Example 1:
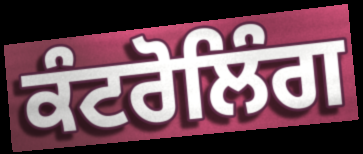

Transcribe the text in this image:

ਕੰਟਰੋਲਿੰਗ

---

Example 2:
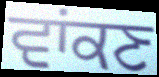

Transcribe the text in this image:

ਵਾਂਕਣ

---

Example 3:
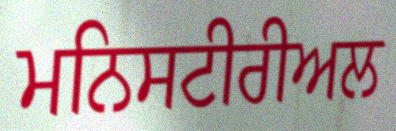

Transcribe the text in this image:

ਮਨਿਸਟੀਰੀਅਲ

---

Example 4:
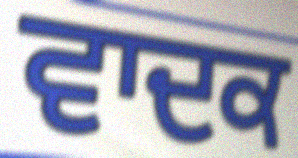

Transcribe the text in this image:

ਵਾਦਕ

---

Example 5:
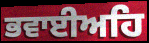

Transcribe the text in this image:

ਭਵਾਈਅਹਿ